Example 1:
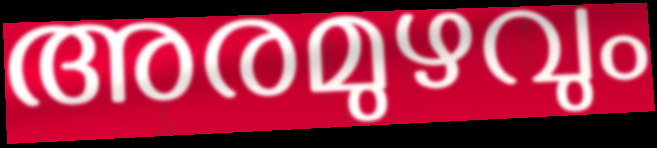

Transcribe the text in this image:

അരമുഴവും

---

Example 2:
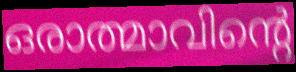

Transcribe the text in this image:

ഒരാത്മാവിന്റെ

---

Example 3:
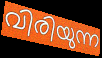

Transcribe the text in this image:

വിരിയുന്ന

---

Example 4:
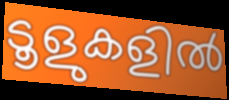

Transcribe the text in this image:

ടൂളുകളിൽ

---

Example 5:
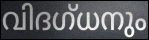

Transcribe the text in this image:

വിദഗ്ധനും